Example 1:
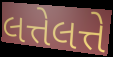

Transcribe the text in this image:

લત્તેલત્તે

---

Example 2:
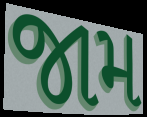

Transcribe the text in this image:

જામ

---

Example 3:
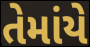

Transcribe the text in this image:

તેમાંયે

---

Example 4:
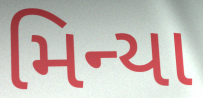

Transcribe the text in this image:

મિન્યા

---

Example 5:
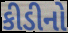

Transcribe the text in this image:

કીડીનો